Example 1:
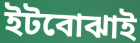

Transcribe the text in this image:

ইটবোঝাই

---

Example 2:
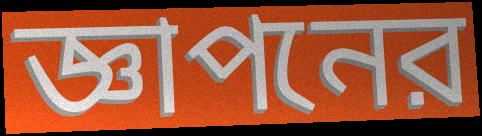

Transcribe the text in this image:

জ্ঞাপনের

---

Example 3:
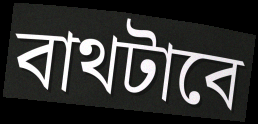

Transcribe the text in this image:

বাথটাবে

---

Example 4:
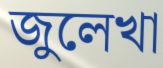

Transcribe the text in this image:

জুলেখা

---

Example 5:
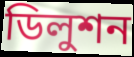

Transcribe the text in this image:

ডিলুশন